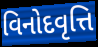
વિનોદવૃત્તિ